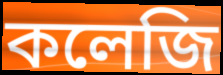
কলেজি